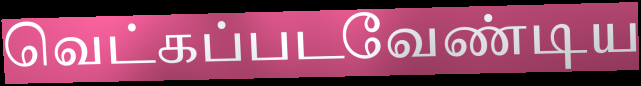
வெட்கப்படவேண்டிய